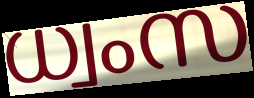
ധ്വംസ